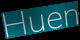
Huen